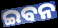
ଇବନ